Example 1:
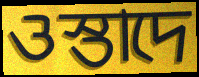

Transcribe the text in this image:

ওস্তাদে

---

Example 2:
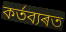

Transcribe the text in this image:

কৰ্তব্যৰত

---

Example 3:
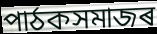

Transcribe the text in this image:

পাঠকসমাজৰ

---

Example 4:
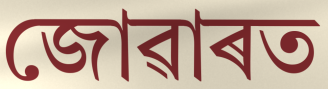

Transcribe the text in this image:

জোৱাৰত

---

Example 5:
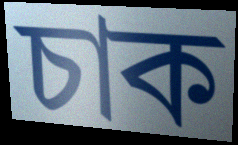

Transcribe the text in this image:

চাক